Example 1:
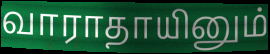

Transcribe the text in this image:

வாராதாயினும்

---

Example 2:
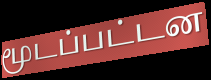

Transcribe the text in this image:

மூடப்பட்டன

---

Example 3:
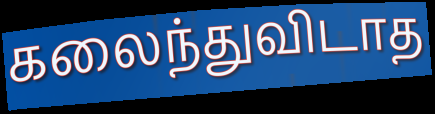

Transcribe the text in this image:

கலைந்துவிடாத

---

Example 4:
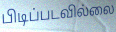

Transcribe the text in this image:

பிடிப்படவில்லை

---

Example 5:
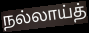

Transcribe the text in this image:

நல்லாய்த்